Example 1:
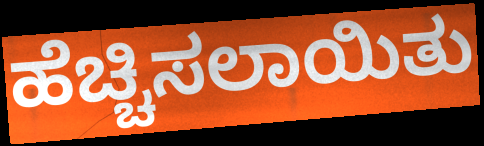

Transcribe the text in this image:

ಹೆಚ್ಚಿಸಲಾಯಿತು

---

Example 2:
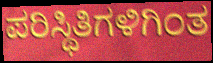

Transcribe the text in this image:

ಪರಿಸ್ಥಿತಿಗಳಿಗಿಂತ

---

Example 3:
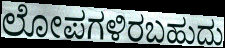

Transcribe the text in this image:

ಲೋಪಗಳಿರಬಹುದು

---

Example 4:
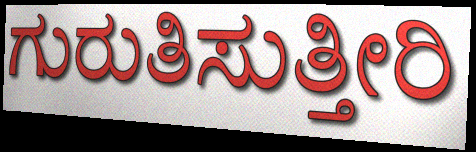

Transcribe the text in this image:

ಗುರುತಿಸುತ್ತೀರಿ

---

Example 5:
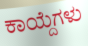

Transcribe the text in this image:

ಕಾಯ್ದೆಗಳು